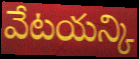
వేటయన్కి